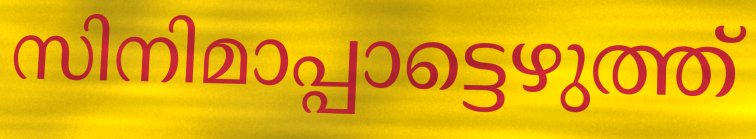
സിനിമാപ്പാട്ടെഴുത്ത്